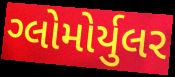
ગ્લોમોર્યુલર